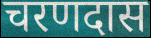
चरणदास